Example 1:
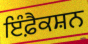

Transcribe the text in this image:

ਇੰਫ਼ੈਕਸ਼ਨ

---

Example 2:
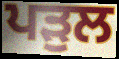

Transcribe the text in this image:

ਪੜੁਲ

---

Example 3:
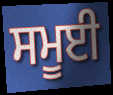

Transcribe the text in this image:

ਸਮੂਈ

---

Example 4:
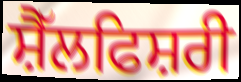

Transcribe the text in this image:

ਸ਼ੈੱਲਫਿਸ਼ਰੀ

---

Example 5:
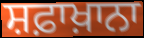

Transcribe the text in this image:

ਸ਼ਫ਼ਾਖ਼ਾਨਾ